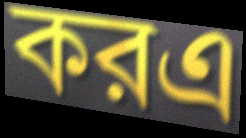
করএ